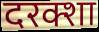
दरक्शा